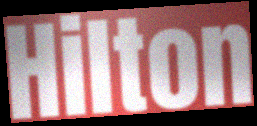
Hilton